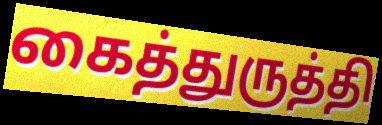
கைத்துருத்தி